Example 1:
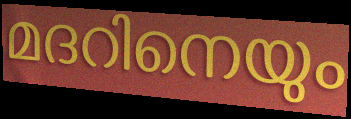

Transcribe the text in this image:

മദറിനെയും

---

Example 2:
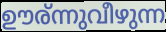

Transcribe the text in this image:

ഊര്ന്നുവീഴുന്ന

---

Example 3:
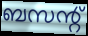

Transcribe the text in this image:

ബസന്റ്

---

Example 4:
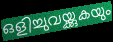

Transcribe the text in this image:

ഒളിച്ചുവയ്ക്കുകയും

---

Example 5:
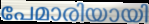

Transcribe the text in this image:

പേമാരിയായി